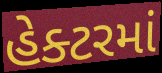
હેક્ટરમાં